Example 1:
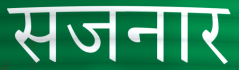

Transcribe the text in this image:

सजनार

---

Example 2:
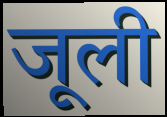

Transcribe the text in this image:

जूली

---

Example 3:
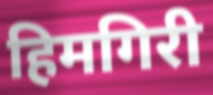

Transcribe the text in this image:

हिमगिरी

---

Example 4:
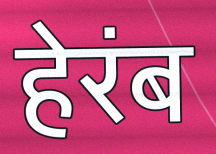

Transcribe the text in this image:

हेरंब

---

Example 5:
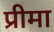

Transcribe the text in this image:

प्रीमा